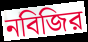
নবিজির